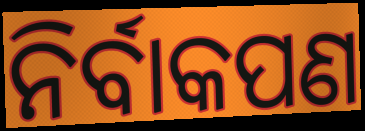
ନିର୍ବାକପଣ